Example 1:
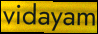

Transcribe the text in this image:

vidayam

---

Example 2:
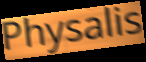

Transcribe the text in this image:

Physalis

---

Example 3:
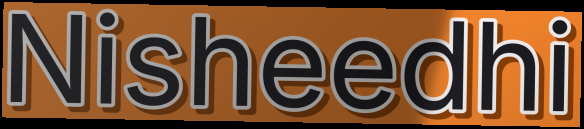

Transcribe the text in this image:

Nisheedhi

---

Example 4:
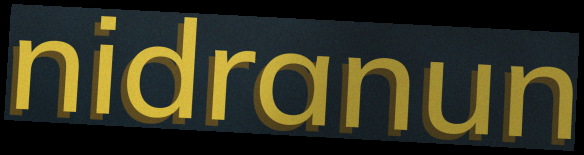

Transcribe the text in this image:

nidranun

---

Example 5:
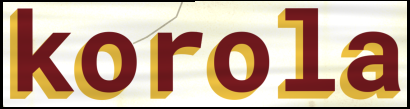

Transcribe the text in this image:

korola